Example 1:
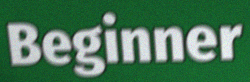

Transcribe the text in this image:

Beginner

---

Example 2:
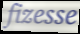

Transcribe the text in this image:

fizesse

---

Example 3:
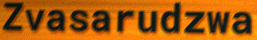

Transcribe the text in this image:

Zvasarudzwa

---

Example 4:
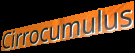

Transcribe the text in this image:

Cirrocumulus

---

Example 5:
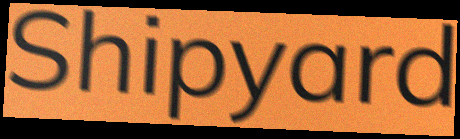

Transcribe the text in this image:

Shipyard